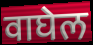
वाघेल